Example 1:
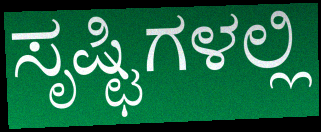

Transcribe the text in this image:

ಸೃಷ್ಟಿಗಳಲ್ಲಿ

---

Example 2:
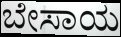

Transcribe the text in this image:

ಬೇಸಾಯ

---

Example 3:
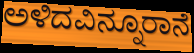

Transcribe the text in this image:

ಅಳಿದವಿನ್ನೂರಾನೆ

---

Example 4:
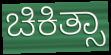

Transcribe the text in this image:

ಚಿಕಿತ್ಸಾ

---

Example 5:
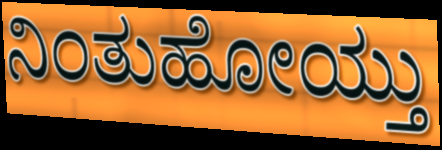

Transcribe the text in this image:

ನಿಂತುಹೋಯ್ತು